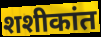
शशीकांत